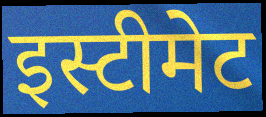
इस्टीमेट